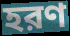
হরণ